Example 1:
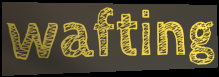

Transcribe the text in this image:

wafting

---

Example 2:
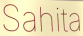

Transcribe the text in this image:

Sahita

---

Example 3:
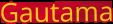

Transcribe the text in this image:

Gautama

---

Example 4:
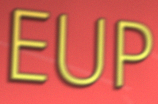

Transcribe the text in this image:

EUP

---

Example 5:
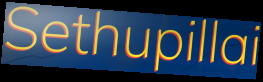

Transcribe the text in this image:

Sethupillai